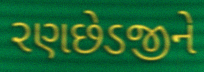
રણછેડજીને